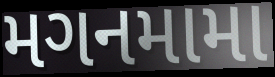
મગનમામા